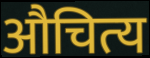
औचित्‍य